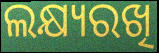
ଲକ୍ଷ୍ୟରଖି